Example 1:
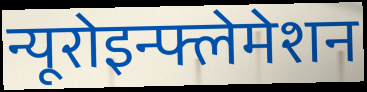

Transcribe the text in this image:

न्यूरोइन्फ्लेमेशन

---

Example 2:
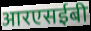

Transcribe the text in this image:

आरएसईबी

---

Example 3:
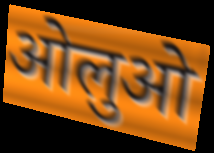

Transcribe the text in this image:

ओलुओ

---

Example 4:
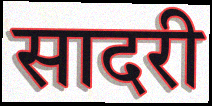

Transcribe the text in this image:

सादरी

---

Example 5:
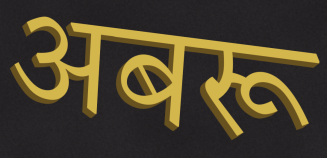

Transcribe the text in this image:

अबरू